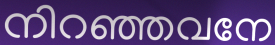
നിറഞ്ഞവനേ